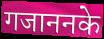
गजाननके